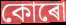
কোৰো